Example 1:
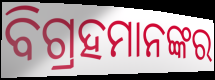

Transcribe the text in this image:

ବିଗ୍ରହମାନଙ୍କର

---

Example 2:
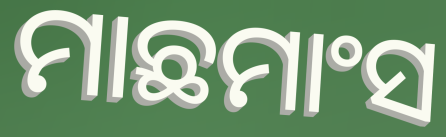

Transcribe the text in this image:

ମାଛମାଂସ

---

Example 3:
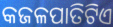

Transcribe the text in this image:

କଜଳପାତିଟିଏ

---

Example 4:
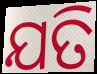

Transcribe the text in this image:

ଯତି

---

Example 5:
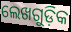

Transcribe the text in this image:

ଲେଖଗୁଡ଼ିକ